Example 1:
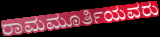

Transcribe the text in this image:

ರಾಮಮೂರ್ತಿಯವರು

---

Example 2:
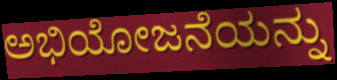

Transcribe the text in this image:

ಅಭಿಯೋಜನೆಯನ್ನು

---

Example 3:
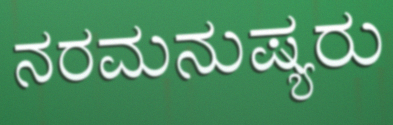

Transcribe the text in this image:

ನರಮನುಷ್ಯರು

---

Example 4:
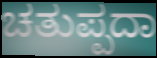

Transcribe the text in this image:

ಚತುಪ್ಪದಾ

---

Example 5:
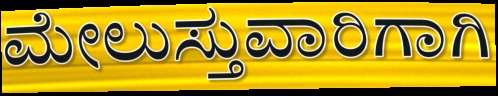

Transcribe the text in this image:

ಮೇಲುಸ್ತುವಾರಿಗಾಗಿ